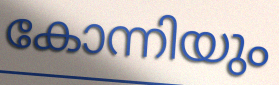
കോന്നിയും